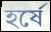
হর্ষে